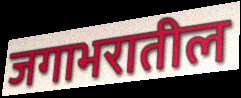
जगाभरातील